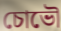
চোভৌ